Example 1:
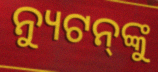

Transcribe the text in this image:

ନ୍ୟୁଟନ୍‌ଙ୍କୁ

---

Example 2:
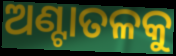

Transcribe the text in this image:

ଅଣ୍ଟାତଳକୁ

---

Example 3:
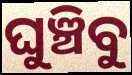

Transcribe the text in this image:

ଘୁଞ୍ଚିବୁ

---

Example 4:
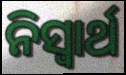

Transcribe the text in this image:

ନିସ୍ୱାର୍ଥ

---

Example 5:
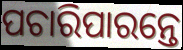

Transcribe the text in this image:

ପଚାରିପାରନ୍ତେ